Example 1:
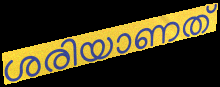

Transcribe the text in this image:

ശരിയാണത്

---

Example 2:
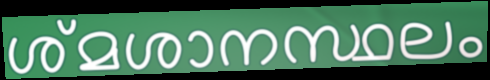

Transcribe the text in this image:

ശ്മശാനസ്ഥലം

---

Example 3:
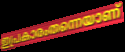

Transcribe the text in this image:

ഇപ്രകാരംതന്നെയാണ്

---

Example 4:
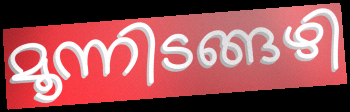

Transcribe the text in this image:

മൂന്നിടങ്ങഴി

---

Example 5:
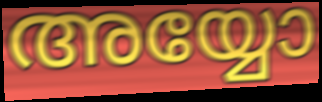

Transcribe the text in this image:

അയ്യോ